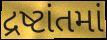
દ્રષ્ટાંતમાં